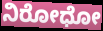
ನಿರೋಧೋ